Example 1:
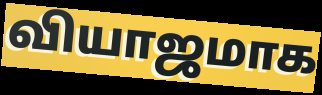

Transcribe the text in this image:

வியாஜமாக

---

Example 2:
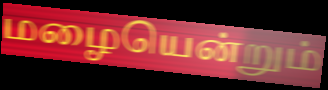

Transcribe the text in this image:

மழையென்றும்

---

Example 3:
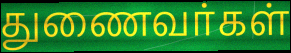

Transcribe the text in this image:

துணைவர்கள்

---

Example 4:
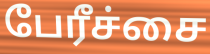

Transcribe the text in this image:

பேரீச்சை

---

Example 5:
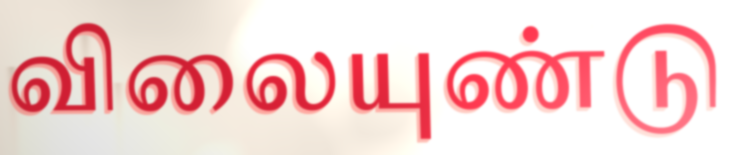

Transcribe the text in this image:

விலையுண்டு